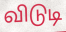
விடுடி